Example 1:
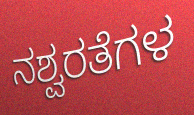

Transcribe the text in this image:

ನಶ್ವರತೆಗಳ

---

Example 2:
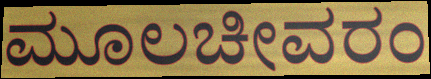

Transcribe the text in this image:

ಮೂಲಚೀವರಂ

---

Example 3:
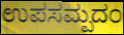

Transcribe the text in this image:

ಉಪಸಮ್ಪದಂ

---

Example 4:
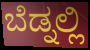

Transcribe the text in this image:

ಬೆಡ್ನಲ್ಲಿ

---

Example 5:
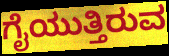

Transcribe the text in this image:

ಗೈಯುತ್ತಿರುವ